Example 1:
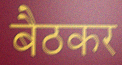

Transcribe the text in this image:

बैठकर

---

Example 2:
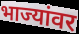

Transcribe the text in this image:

भाज्यांवर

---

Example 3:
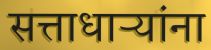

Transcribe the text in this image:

सत्ताधाऱ्यांना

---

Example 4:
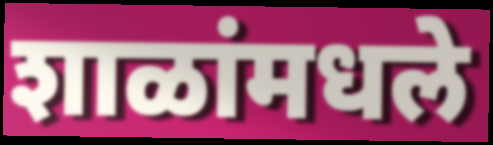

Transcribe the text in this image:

शाळांमधले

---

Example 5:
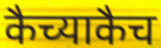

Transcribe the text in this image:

कैच्याकैच